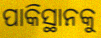
ପାକିସ୍ଥାନକୁ